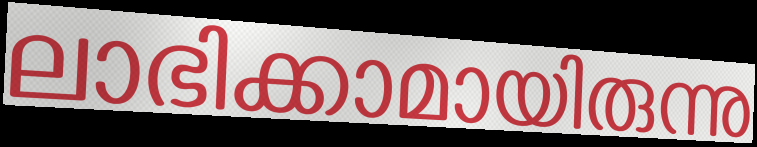
ലാഭിക്കാമായിരുന്നു